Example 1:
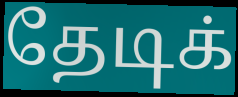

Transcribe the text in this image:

தேடிக்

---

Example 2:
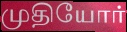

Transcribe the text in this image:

முதியோர்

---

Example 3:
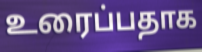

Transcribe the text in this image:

உரைப்பதாக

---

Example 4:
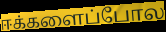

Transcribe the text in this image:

ஈக்களைப்போல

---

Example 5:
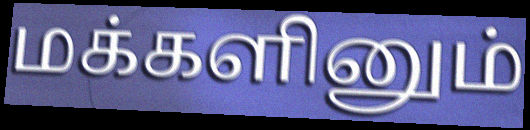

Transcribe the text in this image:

மக்களினும்